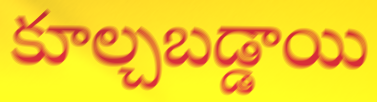
కూల్చబడ్డాయి